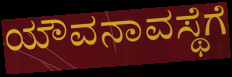
ಯೌವನಾವಸ್ಥೆಗೆ